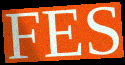
FES